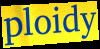
ploidy